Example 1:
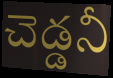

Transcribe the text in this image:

చెడ్డనీ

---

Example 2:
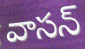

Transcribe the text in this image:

వాసన్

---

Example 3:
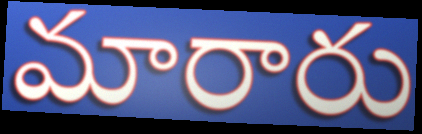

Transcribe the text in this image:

మారారు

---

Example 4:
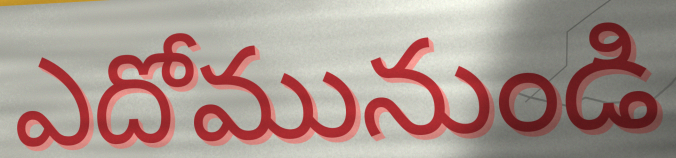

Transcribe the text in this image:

ఎదోమునుండి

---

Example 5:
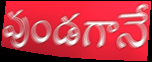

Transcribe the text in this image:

వుండగానే